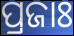
ପ୍ରଜାଃ